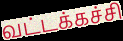
வட்டக்கச்சி